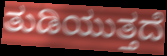
ತುಡಿಯುತ್ತದೆ